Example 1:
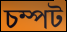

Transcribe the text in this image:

চম্পট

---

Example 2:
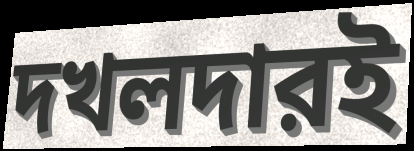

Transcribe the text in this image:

দখলদারই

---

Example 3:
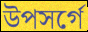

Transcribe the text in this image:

উপসর্গে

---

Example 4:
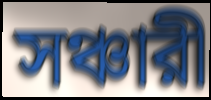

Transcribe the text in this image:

সঞ্চারী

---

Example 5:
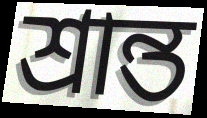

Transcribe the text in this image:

শ্রান্ত